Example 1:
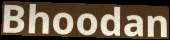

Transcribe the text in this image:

Bhoodan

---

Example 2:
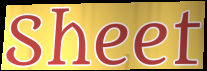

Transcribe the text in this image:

Sheet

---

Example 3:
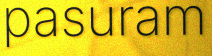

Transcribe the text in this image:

pasuram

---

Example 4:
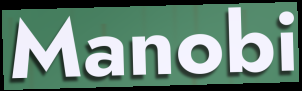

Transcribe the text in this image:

Manobi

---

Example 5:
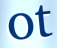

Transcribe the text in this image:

ot